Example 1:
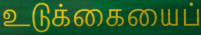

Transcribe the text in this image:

உடுக்கையைப்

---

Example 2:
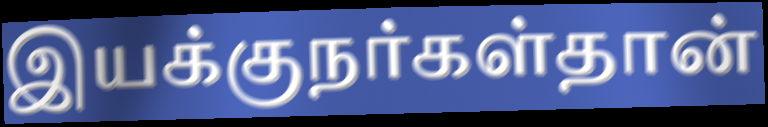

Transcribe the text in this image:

இயக்குநர்கள்தான்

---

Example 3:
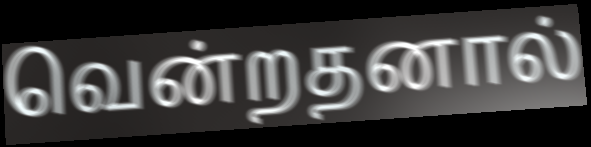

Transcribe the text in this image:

வென்றதனால்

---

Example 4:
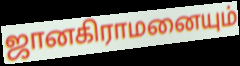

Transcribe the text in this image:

ஜானகிராமனையும்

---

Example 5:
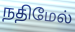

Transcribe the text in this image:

நதிமேல்